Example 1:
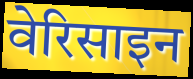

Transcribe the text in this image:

वेरिसाइन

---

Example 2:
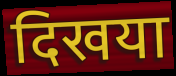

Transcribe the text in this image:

दिखया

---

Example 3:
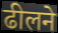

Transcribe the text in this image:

ढीलने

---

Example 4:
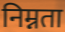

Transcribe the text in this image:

निम्नता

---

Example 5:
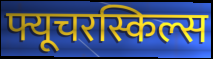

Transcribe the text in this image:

फ्यूचरस्किल्स